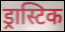
ड्रास्टिक